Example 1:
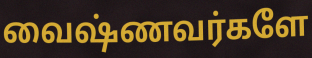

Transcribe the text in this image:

வைஷ்ணவர்களே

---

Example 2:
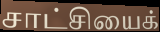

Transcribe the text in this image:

சாட்சியைக்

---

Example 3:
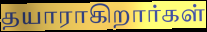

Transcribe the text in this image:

தயாராகிறார்கள்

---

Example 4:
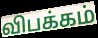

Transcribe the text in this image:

விபக்கம்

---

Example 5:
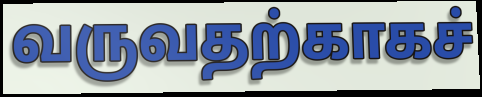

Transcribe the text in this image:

வருவதற்காகச்